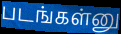
படங்கள்னு